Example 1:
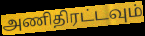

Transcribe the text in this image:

அணிதிரட்டவும்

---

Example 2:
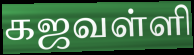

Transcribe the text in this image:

கஜவள்ளி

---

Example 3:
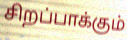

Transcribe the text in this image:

சிறப்பாக்கும்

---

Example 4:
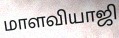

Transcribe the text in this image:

மாளவியாஜி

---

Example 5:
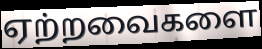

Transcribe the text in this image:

ஏற்றவைகளை